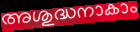
അശുദ്ധനാകാം